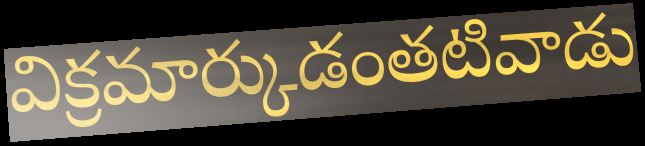
విక్రమార్కుడంతటివాడు